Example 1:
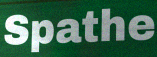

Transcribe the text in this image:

Spathe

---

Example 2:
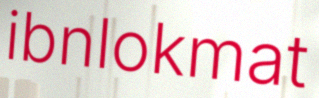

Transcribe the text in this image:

ibnlokmat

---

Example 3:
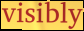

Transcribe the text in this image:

visibly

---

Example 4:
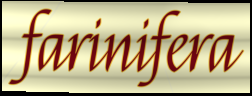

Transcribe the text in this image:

farinifera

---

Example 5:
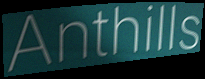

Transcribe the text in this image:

Anthills